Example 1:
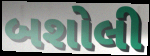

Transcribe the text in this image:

બશોલી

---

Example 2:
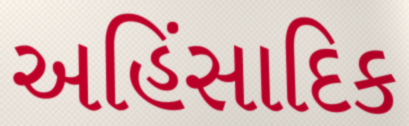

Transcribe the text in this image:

અહિંસાદિક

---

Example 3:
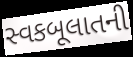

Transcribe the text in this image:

સ્વકબૂલાતની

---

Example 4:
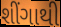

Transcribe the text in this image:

શીંગાથી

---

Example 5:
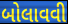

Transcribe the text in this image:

બોલાવવી